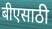
बीएसाठी